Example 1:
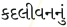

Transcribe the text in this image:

કદલીવનનું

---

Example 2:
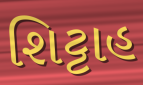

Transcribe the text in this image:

શિટ્ટાહ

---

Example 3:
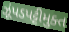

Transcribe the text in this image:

ઝૂંપડપટ્ટીમુક્ત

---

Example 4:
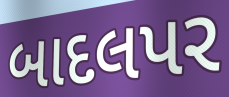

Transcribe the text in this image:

બાદલપર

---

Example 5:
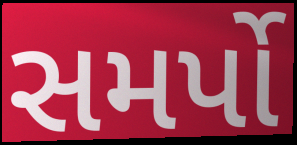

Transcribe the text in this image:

સમર્પો